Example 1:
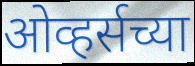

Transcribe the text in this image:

ओव्हर्सच्या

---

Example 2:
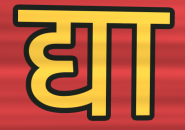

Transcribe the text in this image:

द्या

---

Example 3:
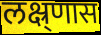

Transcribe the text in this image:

लक्ष्र्णास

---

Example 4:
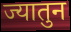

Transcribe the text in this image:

ज्यातुन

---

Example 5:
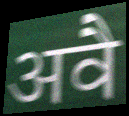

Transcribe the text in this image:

अवै